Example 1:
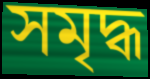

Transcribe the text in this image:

সমৃদ্ধ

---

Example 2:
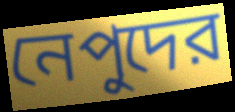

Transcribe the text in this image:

নেপুদের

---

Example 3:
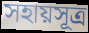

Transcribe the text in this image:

সহায়সূত্র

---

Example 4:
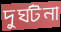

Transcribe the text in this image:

দুর্ঘটনা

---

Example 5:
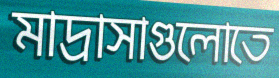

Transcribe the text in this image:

মাদ্রাসাগুলোতে